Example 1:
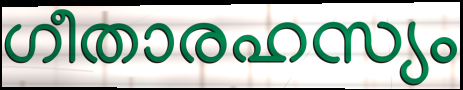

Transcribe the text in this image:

ഗീതാരഹസ്യം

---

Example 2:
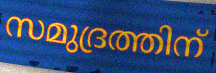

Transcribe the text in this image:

സമുദ്രത്തിന്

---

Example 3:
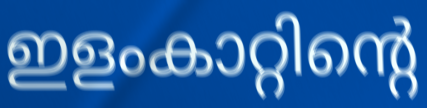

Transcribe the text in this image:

ഇളംകാറ്റിന്റെ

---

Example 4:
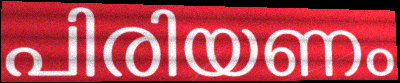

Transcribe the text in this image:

പിരിയണം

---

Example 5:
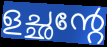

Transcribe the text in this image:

ളച്ഛന്റേ